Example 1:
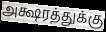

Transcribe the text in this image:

அக்ஷரத்துக்கு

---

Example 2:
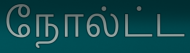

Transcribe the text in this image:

நோல்ட்ட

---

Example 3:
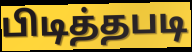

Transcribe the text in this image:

பிடித்தபடி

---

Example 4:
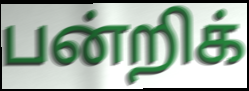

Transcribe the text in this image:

பன்றிக்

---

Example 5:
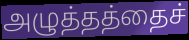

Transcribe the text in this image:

அழுத்தத்தைச்